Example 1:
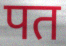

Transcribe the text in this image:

पत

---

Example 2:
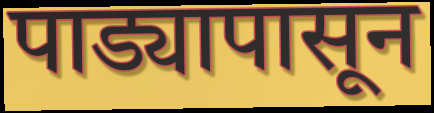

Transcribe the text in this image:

पाड्यापासून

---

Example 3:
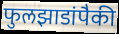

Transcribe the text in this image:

फुलझाडांपैकी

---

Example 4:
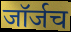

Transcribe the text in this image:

जॉर्जच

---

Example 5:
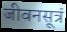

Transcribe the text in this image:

जीवनसूत्रं